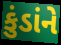
કુંડાંને